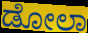
ಡೋಲಾ